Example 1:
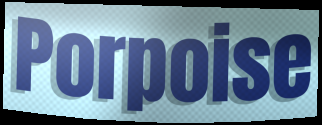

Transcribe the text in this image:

Porpoise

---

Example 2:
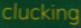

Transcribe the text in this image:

clucking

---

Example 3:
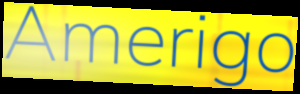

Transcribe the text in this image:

Amerigo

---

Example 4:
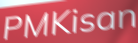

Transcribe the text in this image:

PMKisan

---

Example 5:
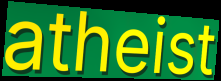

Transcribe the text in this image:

atheist